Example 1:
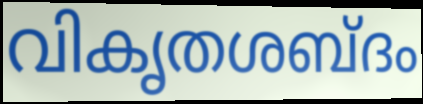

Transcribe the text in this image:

വികൃതശബ്ദം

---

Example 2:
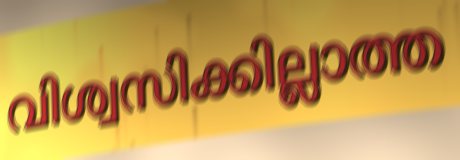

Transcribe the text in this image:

വിശ്വസിക്കില്ലാത്ത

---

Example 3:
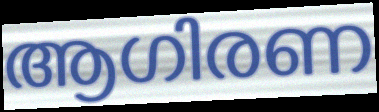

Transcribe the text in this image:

ആഗിരണ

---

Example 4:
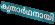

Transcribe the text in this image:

കൃതാർഥനായി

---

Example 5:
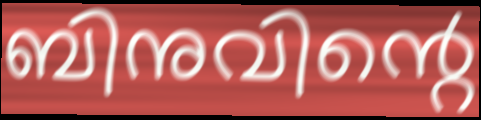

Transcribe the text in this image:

ബിനുവിന്റെ